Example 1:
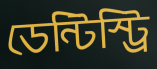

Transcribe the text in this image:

ডেন্টিস্ট্রি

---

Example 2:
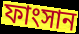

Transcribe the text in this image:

ফাংসান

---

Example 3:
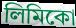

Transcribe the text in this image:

লিমিকো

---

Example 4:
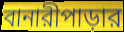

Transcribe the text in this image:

বানারীপাড়ার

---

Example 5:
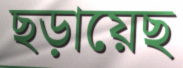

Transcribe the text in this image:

ছড়ায়েছ